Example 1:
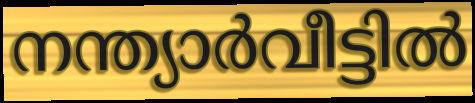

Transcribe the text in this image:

നന്ത്യാർവീട്ടിൽ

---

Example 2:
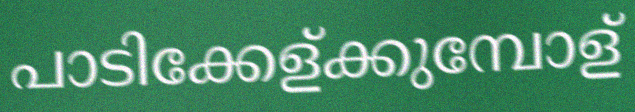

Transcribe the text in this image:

പാടിക്കേള്ക്കുമ്പോള്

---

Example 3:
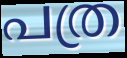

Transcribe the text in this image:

പത്ര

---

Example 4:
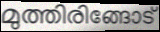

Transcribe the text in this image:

മുത്തിരിങ്ങോട്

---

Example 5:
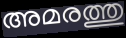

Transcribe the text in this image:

അമരത്തു